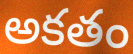
అకతం